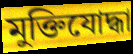
মুক্তিযোদ্ধা